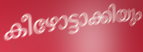
കീഴോട്ടാക്കിയും